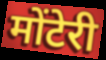
मोंटेरी